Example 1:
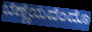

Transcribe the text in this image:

ಬೆಣ್ಣೆಯದೆಂದೊ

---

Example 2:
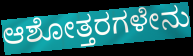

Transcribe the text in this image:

ಆಶೋತ್ತರಗಳೇನು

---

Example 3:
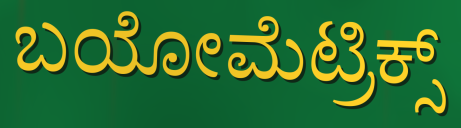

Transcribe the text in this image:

ಬಯೋಮೆಟ್ರಿಕ್ಸ್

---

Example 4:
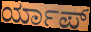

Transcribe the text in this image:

ರ್ಯಾಪ್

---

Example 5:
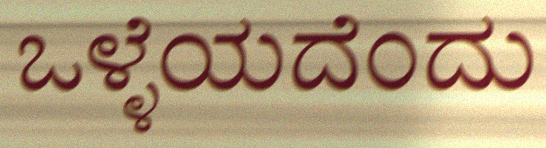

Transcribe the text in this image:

ಒಳ್ಳೆಯದೆಂದು